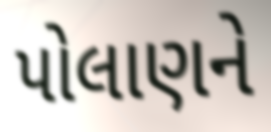
પોલાણને